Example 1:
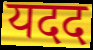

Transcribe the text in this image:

यदद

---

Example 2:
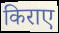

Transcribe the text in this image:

किराए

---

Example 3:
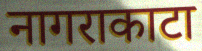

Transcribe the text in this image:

नागराकाटा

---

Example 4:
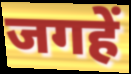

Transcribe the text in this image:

जगहें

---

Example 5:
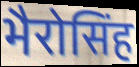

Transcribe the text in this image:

भैरोसिंह